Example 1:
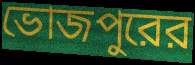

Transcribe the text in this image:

ভোজপুরের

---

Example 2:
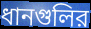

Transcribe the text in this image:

ধানগুলির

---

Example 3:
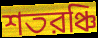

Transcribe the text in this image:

শতরঞ্চি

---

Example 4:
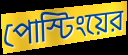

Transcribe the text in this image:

পোস্টিংয়ের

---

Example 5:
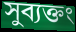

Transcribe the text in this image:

সুব্যক্তং